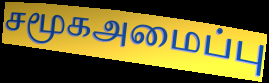
சமூகஅமைப்பு